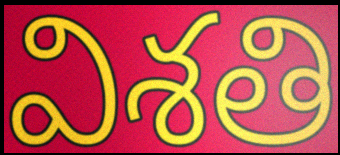
విశతి